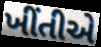
ખીંતીએ